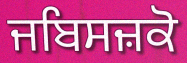
ਜਬਿਸਜ਼ਕੋ